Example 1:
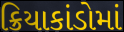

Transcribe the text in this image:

ક્રિયાકાંડોમાં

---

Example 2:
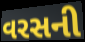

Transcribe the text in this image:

વરસની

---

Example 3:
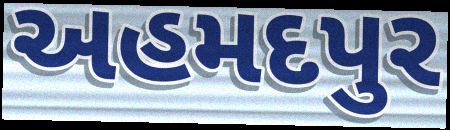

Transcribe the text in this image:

અહમદપુર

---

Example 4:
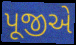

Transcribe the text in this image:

પૂજીએ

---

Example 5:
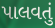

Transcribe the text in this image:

પાલવતું